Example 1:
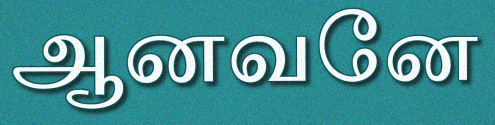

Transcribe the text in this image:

ஆனவனே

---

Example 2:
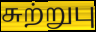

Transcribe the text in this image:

சுற்றுபு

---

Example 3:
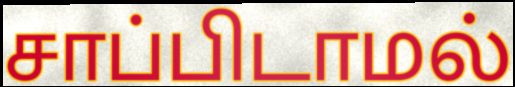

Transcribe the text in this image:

சாப்பிடாமல்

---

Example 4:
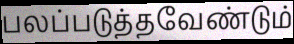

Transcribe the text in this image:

பலப்படுத்தவேண்டும்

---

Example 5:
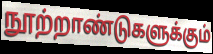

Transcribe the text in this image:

நூற்றாண்டுகளுக்கும்